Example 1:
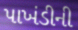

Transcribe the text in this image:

પાખંડીની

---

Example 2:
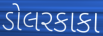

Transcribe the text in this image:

ડોલરકાકા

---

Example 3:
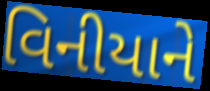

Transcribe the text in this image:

વિનીયાને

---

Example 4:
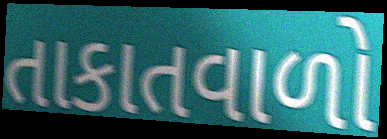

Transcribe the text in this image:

તાકાતવાળો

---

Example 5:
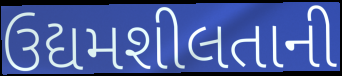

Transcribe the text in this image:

ઉદ્યમશીલતાની